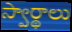
స్వార్థాలు